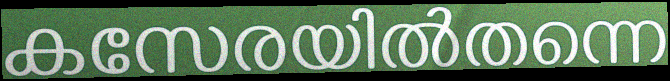
കസേരയിൽതന്നെ